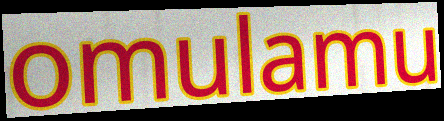
omulamu